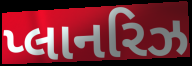
પ્લાનરિઝ